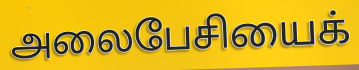
அலைபேசியைக்